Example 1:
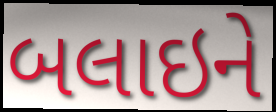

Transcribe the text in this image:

બલાઇને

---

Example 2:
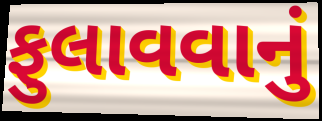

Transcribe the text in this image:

ફુલાવવાનું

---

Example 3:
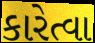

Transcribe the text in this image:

કારેત્વા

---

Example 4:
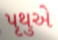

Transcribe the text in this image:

પૃથુએ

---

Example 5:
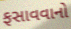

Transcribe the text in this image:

ફસાવવાનો